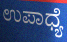
ಉಪಾಧ್ಯೆ